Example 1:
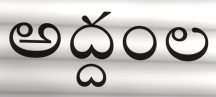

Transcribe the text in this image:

అద్దంల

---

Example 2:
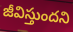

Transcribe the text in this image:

జీవిస్తుందని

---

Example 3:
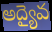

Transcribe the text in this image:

అద్యైవ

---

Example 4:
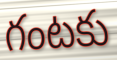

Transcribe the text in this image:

గంటకు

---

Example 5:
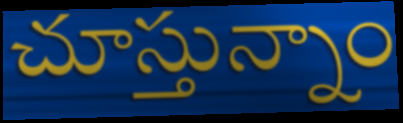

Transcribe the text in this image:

చూస్తున్నాం